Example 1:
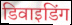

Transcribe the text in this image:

डिवाइडिंग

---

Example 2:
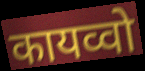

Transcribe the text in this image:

कायव्वो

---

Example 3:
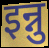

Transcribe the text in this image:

इन्नु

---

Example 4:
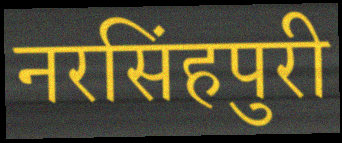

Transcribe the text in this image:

नरसिंहपुरी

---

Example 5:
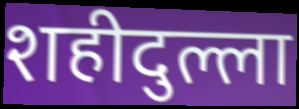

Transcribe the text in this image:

शहीदुल्ला